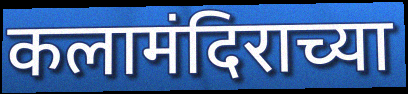
कलामंदिराच्या